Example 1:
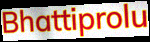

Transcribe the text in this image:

Bhattiprolu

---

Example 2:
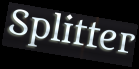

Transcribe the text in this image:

Splitter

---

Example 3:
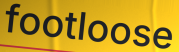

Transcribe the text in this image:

footloose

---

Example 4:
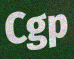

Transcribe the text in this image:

Cgp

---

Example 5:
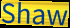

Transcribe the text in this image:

Shaw